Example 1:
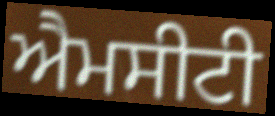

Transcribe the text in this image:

ਐਮਸੀਟੀ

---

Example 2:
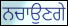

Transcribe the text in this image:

ਨਚਾਉਣਗੇ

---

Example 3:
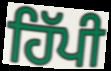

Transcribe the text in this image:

ਹਿੱਪੀ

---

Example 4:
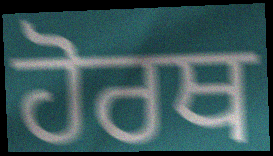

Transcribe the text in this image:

ਹੋਰਥ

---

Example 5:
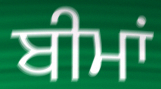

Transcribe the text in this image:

ਬੀਮਾਂ